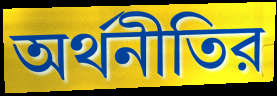
অর্থনীতির